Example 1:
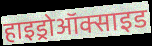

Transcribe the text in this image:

हाइड्रोऑक्साइड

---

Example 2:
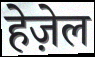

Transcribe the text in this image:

हेज़ेल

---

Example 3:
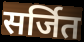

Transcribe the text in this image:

सर्जित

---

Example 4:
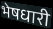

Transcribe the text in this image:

भेषधारी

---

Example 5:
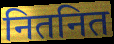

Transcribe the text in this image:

नितनित